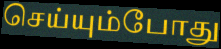
செய்யும்போது